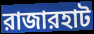
রাজারহাট